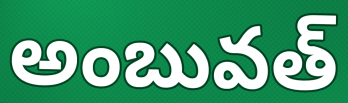
అంబువత్